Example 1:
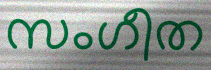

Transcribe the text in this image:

സംഗീത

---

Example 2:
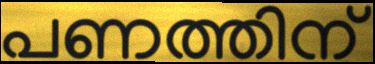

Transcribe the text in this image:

പണത്തിന്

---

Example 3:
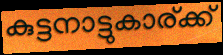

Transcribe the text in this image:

കുട്ടനാട്ടുകാര്ക്ക്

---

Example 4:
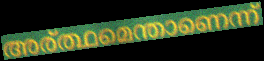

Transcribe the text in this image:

അര്ത്ഥമെന്താണെന്ന്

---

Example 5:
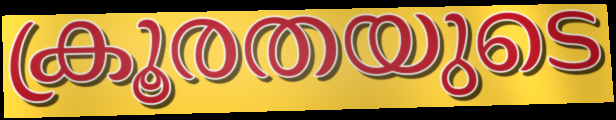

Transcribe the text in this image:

ക്രൂരതയുടെ